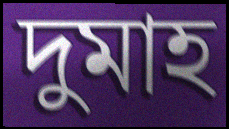
দুমাহ